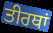
ਤੀਰਥਾਂ